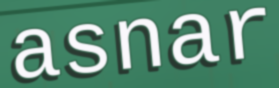
asnar